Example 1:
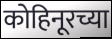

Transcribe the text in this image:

कोहिनूरच्या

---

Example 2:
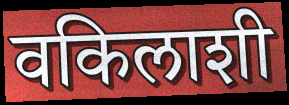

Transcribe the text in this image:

वकिलाशी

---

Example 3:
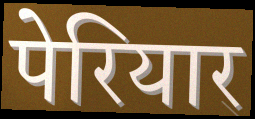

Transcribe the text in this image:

पेरियार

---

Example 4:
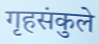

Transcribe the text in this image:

गृहसंकुले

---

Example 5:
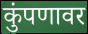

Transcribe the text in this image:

कुंपणावर